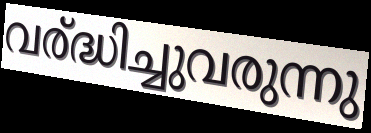
വര്ദ്ധിച്ചുവരുന്നു